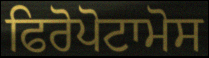
ਫਿਰੋਪੋਟਾਮੋਸ